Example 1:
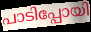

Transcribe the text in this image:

പാടിപ്പോയി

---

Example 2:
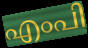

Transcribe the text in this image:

എംപി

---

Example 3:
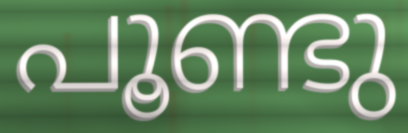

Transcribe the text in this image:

പൂണ്ടു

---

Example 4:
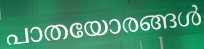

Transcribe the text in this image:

പാതയോരങ്ങൾ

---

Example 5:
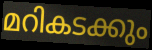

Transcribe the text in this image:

മറികടക്കും